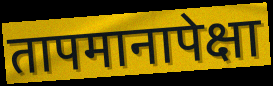
तापमानापेक्षा